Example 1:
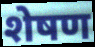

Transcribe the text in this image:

शेषण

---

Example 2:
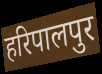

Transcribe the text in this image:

हरिपालपुर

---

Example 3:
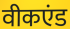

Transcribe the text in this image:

वीकएंड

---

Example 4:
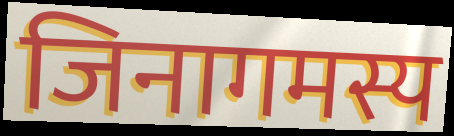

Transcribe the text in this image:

जिनागमस्य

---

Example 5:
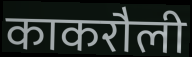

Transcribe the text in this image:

काकरौली